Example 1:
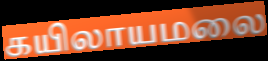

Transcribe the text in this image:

கயிலாயமலை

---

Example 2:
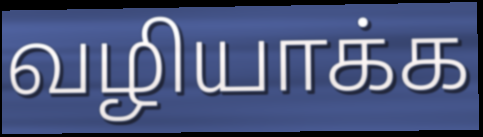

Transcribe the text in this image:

வழியாக்க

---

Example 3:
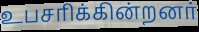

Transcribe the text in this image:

உபசரிக்கின்றனர்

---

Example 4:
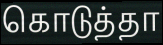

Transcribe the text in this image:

கொடுத்தா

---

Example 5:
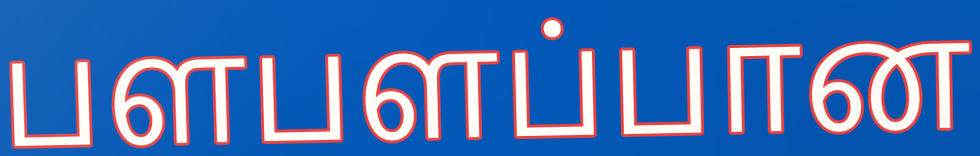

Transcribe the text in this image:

பளபளப்பான